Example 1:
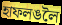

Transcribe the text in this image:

হাফলঙলৈ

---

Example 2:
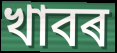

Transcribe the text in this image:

খাবৰ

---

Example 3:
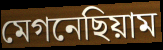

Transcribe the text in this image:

মেগনেছিয়াম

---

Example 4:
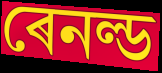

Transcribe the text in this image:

ৰেনল্ড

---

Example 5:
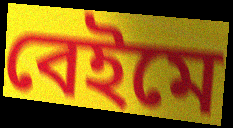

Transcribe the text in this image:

বেইমে